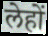
लेहों